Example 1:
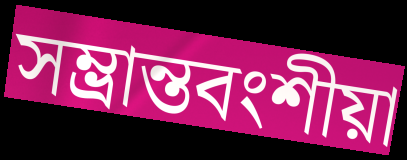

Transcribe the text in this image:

সম্ভ্রান্তবংশীয়া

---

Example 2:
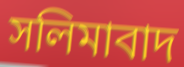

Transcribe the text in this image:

সলিমাবাদ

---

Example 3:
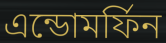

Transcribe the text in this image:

এন্ডোমর্ফিন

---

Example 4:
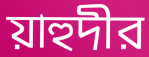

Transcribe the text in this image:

য়াহুদীর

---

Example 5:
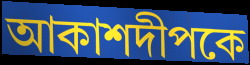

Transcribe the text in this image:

আকাশদীপকে